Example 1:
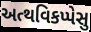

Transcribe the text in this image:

અત્થવિકપ્પેસુ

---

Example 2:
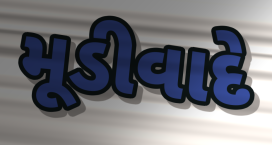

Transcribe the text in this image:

મૂડીવાદે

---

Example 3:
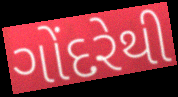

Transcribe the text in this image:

ગોંદરેથી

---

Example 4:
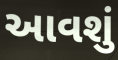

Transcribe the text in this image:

આવશું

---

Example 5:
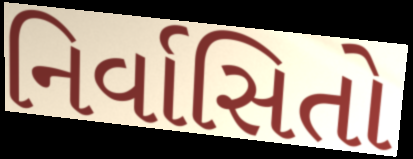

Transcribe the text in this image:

નિર્વાસિતો